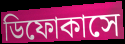
ডিফোকাসে